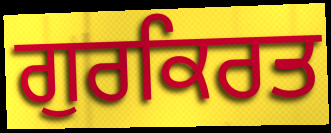
ਗੁਰਕਿਰਤ